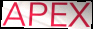
APEX